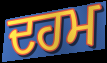
ਦਹਮ